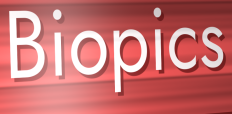
Biopics